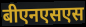
बीएनएसएस